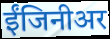
ईंजिनीअर